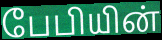
பேபியின்